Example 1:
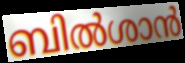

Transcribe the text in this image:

ബിൽശാൻ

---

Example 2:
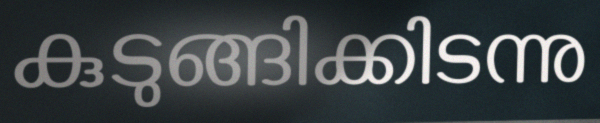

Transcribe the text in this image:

കുടുങ്ങിക്കിടന്നു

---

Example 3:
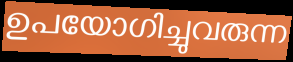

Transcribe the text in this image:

ഉപയോഗിച്ചുവരുന്ന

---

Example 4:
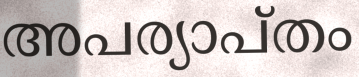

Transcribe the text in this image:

അപര്യാപ്തം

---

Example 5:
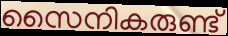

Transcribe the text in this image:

സൈനികരുണ്ട്